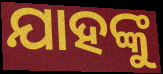
ଯାହଙ୍କୁ